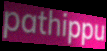
pathippu